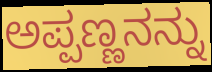
ಅಪ್ಪಣ್ಣನನ್ನು